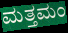
ಮತ್ತಮಂ